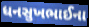
ધનસુખભાઈના